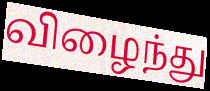
விழைந்து